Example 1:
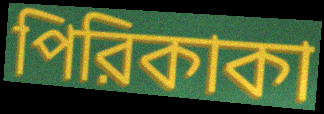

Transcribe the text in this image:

পিরিকাকা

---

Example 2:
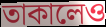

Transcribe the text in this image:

তাকালেও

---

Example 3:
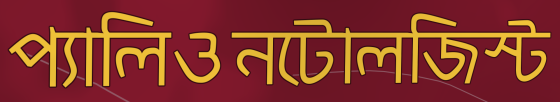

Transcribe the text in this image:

প্যালিওনটোলজিস্ট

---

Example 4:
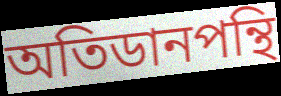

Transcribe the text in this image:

অতিডানপন্থি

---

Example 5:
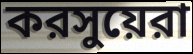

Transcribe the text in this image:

করসুয়েরা